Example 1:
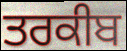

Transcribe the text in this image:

ਤਰਕੀਬ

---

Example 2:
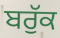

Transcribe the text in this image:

ਬਰੁੱਕ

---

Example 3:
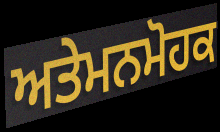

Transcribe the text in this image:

ਅਤੇਮਨਮੋਹਕ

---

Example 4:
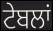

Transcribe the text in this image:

ਟੇਬਲਾਂ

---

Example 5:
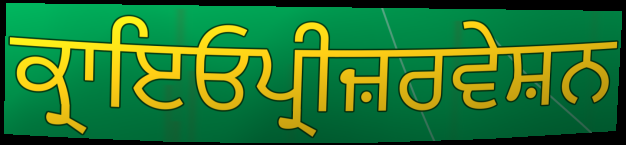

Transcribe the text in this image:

ਕ੍ਰਾਇਓਪ੍ਰੀਜ਼ਰਵੇਸ਼ਨ